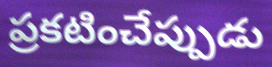
ప్రకటించేప్పుడు